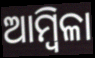
ଆମ୍ବିଳା